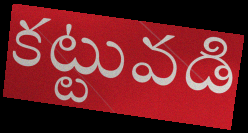
కట్టువడి